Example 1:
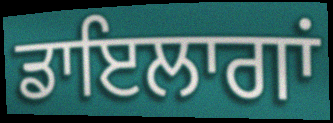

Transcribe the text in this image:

ਡਾਇਲਾਗਾਂ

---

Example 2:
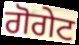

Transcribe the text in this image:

ਗੋਗੇਟ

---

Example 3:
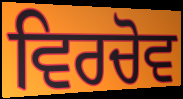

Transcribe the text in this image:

ਵਿਰਚੋਵ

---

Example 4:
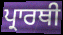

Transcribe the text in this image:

ਪ੍ਰਾਰਥੀ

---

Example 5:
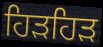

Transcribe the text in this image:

ਹਿੜਹਿੜ